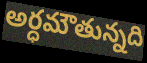
అర్ధమౌతున్నది